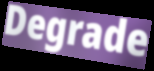
Degrade